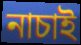
নাচাই